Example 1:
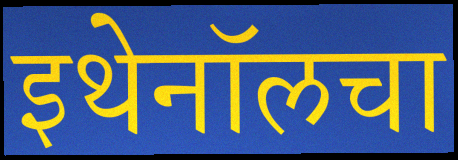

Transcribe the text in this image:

इथेनॉलचा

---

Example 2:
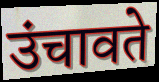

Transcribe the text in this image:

उंचावते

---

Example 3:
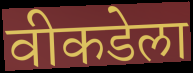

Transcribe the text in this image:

वीकडेला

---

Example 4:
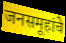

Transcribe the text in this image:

जनसमूहांचे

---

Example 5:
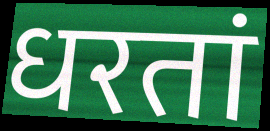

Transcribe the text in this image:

धरतां